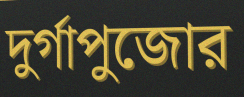
দুর্গাপুজোর